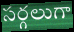
సర్గలుగా